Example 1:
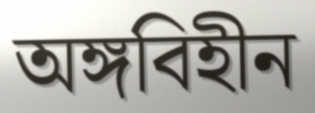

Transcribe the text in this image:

অঙ্গবিহীন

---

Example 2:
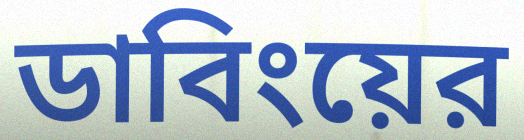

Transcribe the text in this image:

ডাবিংয়ের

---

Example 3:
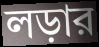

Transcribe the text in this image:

লড়ার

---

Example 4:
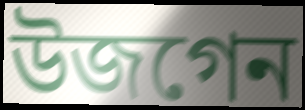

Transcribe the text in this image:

উজগেন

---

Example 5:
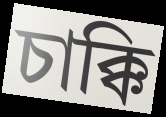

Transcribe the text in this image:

চাক্কি